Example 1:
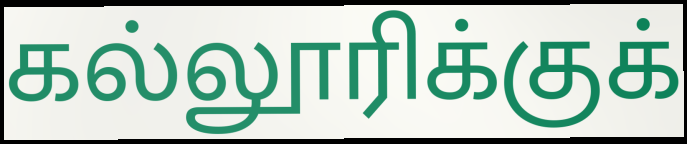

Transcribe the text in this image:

கல்லூரிக்குக்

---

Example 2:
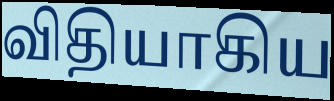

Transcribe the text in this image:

விதியாகிய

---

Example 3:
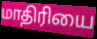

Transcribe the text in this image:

மாதிரியை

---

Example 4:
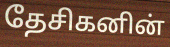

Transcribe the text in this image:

தேசிகனின்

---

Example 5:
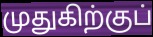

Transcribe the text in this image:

முதுகிற்குப்